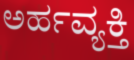
ಅರ್ಹವ್ಯಕ್ತಿ